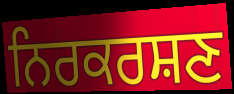
ਨਿਰਕਰਸ਼ਣ